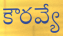
కౌరవ్యే